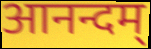
आनन्दम्